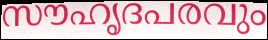
സൗഹൃദപരവും